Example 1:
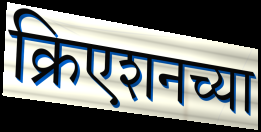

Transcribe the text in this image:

क्रिएशनच्या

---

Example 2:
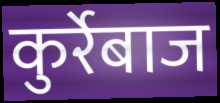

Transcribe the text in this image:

कुर्रेबाज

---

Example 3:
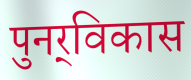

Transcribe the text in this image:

पुनर्विकास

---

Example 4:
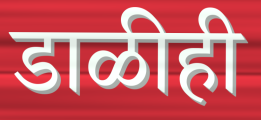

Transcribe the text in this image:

डाळीही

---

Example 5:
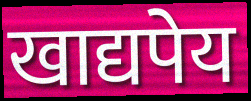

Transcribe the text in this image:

खाद्यपेय